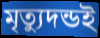
মৃত্যুদন্ডই